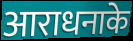
आराधनाके